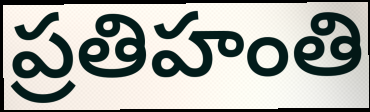
ప్రతిహంతి